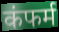
कंफर्म